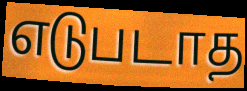
எடுபடாத